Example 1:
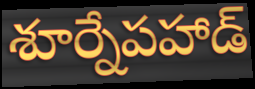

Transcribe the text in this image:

శూర్నేపహాడ్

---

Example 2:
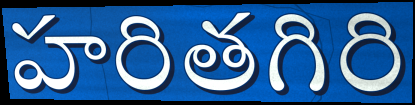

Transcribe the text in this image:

హరితగిరి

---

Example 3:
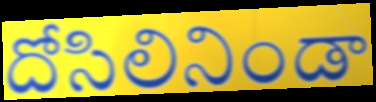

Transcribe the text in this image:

దోసిలినిండా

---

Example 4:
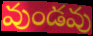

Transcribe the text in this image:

వుండవు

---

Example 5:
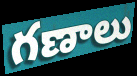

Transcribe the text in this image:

గణాలు